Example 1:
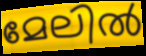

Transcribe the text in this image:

മേലിൽ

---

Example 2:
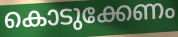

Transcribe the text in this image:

കൊടുക്കേണം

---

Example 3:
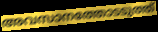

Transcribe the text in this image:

അവസാനത്തോടടുത്ത്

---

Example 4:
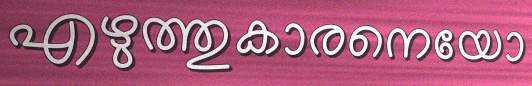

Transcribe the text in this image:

എഴുത്തുകാരനെയോ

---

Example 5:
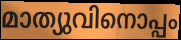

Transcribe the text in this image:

മാത്യുവിനൊപ്പം